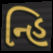
ન્હિ